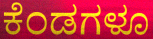
ಕೆಂಡಗಳೂ